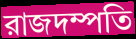
রাজদম্পতি